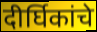
दीर्घिकांचे